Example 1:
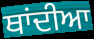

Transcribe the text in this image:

ਥਾਂਦੀਆ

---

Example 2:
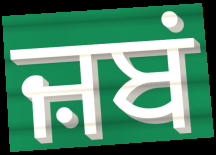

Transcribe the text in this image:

ਜ਼ਬਂ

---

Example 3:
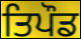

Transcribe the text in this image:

ਤਿਪੌਡ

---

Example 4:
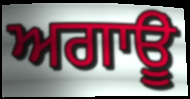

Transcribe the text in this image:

ਅਗਾਊੂਂ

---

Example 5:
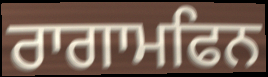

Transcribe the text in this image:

ਰਾਗਾਮਫਿਨ